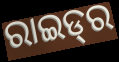
ରାଇଡ୍‌ର